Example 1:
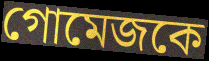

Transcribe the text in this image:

গোমেজকে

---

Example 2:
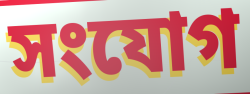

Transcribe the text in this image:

সংযোগ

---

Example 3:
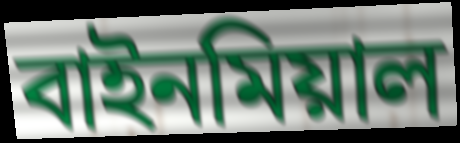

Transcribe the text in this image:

বাইনমিয়াল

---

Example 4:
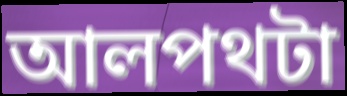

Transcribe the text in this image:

আলপথটা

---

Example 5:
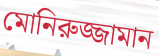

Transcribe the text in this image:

মোনিরুজ্জামান